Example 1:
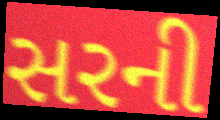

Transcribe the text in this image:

સરની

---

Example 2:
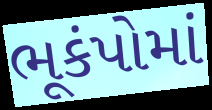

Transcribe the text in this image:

ભૂકંપોમાં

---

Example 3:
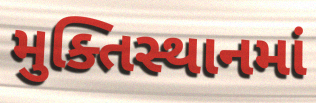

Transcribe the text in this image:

મુક્તિસ્થાનમાં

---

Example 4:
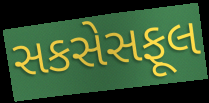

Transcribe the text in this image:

સકસેસફૂલ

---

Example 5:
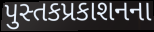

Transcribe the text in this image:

પુસ્તકપ્રકાશનના